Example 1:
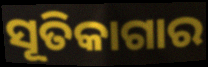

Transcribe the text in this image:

ସୂତିକାଗାର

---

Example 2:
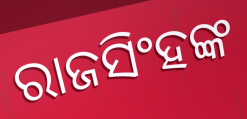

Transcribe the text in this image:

ରାଜସିଂହଙ୍କ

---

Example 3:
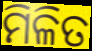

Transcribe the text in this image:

ମିଳିତ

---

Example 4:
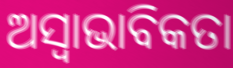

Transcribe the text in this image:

ଅସ୍ୱାଭାବିକତା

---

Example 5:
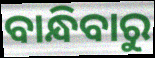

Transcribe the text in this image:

ବାନ୍ଧିବାରୁ